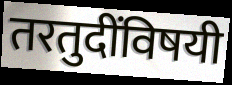
तरतुदींविषयी